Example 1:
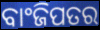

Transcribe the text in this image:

ବାଂଜିପତର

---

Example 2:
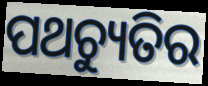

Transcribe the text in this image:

ପଥଚ୍ୟୁତିର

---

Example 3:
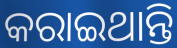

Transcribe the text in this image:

କରାଇଥାନ୍ତି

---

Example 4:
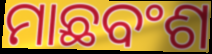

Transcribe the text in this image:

ମାଛବଂଶ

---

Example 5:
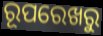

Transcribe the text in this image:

ରୂପରେଖରୁ